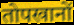
तोपखानों